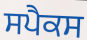
ਸਪੈਕਸ